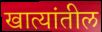
खात्यांतील